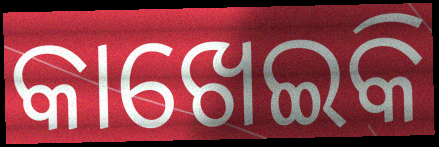
କାଖେଇକି